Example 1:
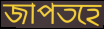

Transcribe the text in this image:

জাপতহে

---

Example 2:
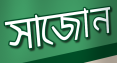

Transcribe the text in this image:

সাজোন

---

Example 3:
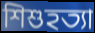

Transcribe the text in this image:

শিশুহত্যা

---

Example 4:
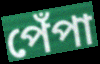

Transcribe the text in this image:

পেঁপা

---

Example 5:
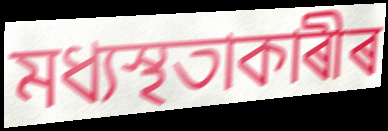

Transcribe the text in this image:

মধ্যস্থতাকাৰীৰ